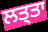
ਲਤ੍ਤਾ